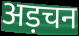
अड़चन